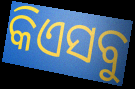
କିଏସବୁ